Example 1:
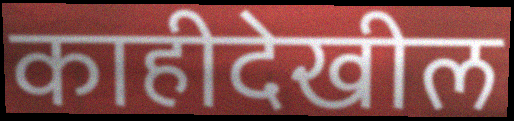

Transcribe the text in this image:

काहीदेखील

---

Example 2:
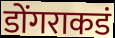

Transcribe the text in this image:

डोंगराकडं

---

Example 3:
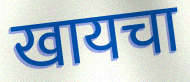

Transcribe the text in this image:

खायचा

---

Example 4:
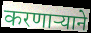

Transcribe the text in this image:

करणाऱ्याने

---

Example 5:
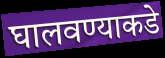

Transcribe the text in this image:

घालवण्याकडे